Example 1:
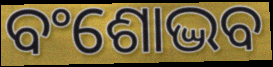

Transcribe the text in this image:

ବଂଶୋଦ୍ଭବ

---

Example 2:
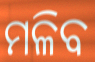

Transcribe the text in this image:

ମଳିବ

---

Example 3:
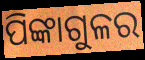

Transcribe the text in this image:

ପିଙ୍କାଗୁଳର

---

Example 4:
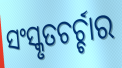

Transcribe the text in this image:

ସଂସ୍କୃତଚର୍ଚ୍ଚାର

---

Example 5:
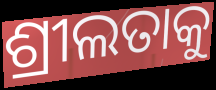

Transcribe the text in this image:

ଶ୍ରୀଲତାକୁ